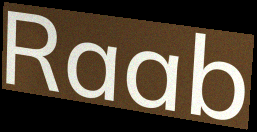
Raab